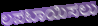
ಲಪಟಾಯಿಸಲು